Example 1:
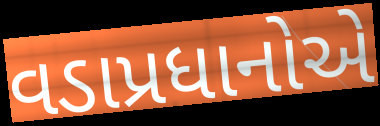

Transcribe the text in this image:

વડાપ્રધાનોએ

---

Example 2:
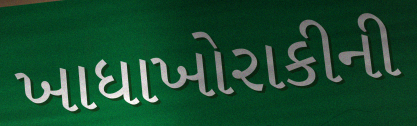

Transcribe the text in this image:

ખાધાખોરાકીની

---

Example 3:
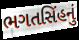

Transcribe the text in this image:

ભગતસિંહનું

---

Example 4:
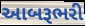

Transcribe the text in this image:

આબરૂભરી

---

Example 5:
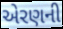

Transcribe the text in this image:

એરણની